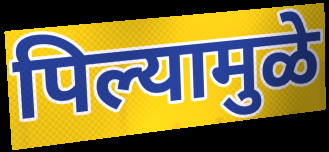
पिल्यामुळे